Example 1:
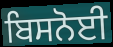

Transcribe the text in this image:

ਬਿਸਨੋਈ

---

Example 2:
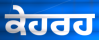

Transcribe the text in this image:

ਕੇਹਰਹ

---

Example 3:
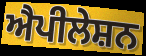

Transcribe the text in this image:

ਐਪੀਲੇਸ਼ਨ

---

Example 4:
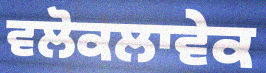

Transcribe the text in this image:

ਵਲੋਕਲਾਵੇਕ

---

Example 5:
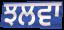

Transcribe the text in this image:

ਝਲਵਾ